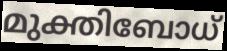
മുക്തിബോധ്